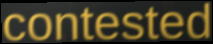
contested